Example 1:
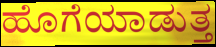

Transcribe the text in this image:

ಹೊಗೆಯಾಡುತ್ತ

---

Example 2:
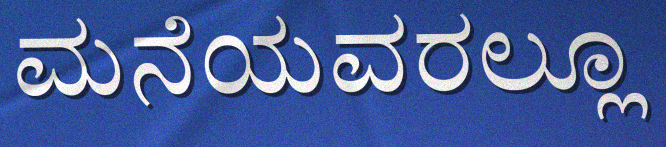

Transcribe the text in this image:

ಮನೆಯವರಲ್ಲೂ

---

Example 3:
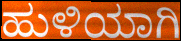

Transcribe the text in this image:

ಹುಳಿಯಾಗಿ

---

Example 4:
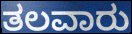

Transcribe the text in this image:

ತಲವಾರು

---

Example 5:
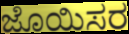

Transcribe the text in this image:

ಜೊಯಿಸರ